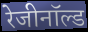
रेजीनॉल्ड